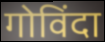
गोविंदा